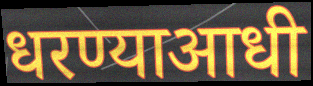
धरण्याआधी